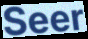
Seer